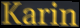
Karin